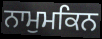
ਨਾਮੁਮਕਿਨ